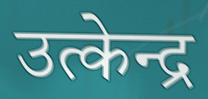
उत्केन्द्र